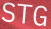
STG